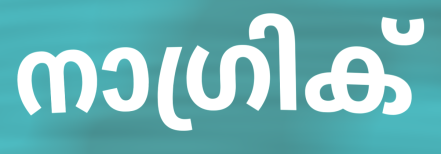
നാഗ്രിക്